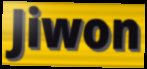
Jiwon